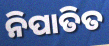
ନିପାତିତ